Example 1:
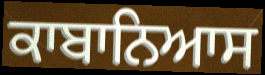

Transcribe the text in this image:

ਕਾਬਾਨਿਆਸ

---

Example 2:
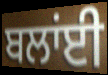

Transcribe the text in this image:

ਬਲਾਂਈ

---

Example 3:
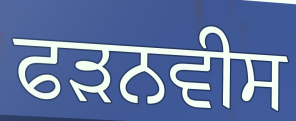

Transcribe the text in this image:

ਫੜਨਵੀਸ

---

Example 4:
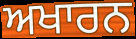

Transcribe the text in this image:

ਅਖਾਰਨ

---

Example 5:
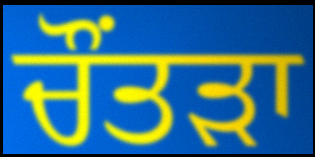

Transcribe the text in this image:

ਚੌਂਤੜਾ